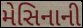
મેસિનાની